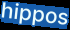
hippos